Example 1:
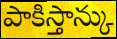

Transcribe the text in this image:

పాకిస్తాన్కు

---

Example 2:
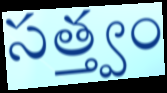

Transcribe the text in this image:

సత్త్వం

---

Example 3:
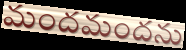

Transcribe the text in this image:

మందమందను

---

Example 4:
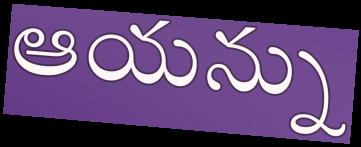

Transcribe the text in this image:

ఆయన్ను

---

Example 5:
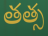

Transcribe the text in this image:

తత్స